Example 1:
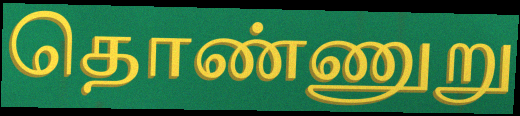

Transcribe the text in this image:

தொண்ணுறு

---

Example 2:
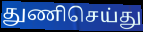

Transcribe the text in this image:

துணிசெய்து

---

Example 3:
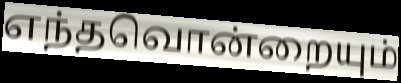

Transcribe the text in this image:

எந்தவொன்றையும்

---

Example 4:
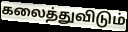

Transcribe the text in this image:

கலைத்துவிடும்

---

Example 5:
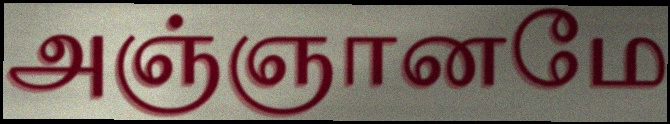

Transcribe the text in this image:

அஞ்ஞானமே